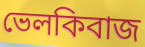
ভেলকিবাজ